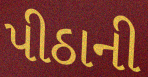
પીઠાની